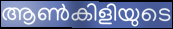
ആൺകിളിയുടെ